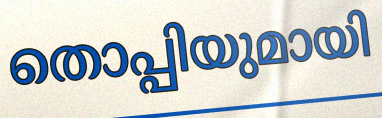
തൊപ്പിയുമായി